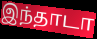
இந்தாடா